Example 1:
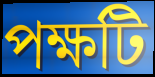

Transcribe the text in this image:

পক্ষটি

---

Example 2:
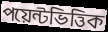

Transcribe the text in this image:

পয়েন্টভিত্তিক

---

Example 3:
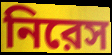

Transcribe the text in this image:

নিরেস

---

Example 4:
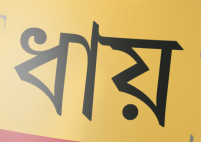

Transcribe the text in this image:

ধায়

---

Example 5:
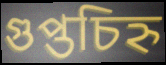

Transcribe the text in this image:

গুপ্তচিহ্ন